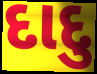
દાદુ